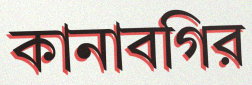
কানাবগির